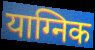
याग्निक